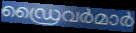
ഡ്രൈവർമാർ